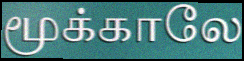
மூக்காலே